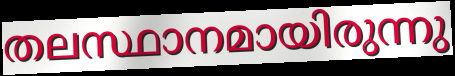
തലസ്ഥാനമായിരുന്നു